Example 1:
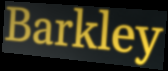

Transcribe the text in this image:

Barkley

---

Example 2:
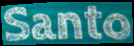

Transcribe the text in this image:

Santo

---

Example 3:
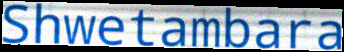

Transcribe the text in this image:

Shwetambara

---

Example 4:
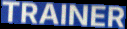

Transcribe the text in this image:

TRAINER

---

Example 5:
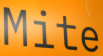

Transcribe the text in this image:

Mite